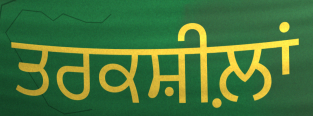
ਤਰਕਸ਼ੀਲ਼ਾਂ